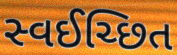
સ્વઈચ્છિત